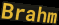
Brahm